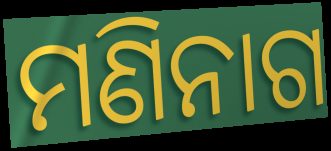
ମଣିନାଗ